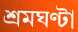
শ্রমঘণ্টা